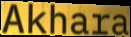
Akhara